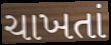
ચાખતાં